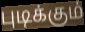
புடிக்கும்